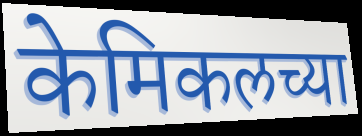
केमिकलच्या